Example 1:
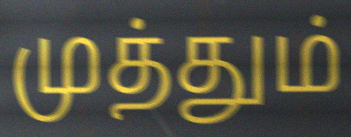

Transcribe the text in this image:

முத்தும்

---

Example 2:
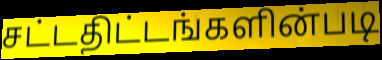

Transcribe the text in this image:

சட்டதிட்டங்களின்படி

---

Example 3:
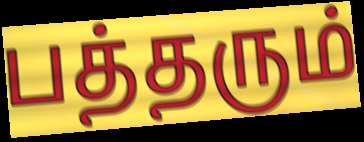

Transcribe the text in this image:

பத்தரும்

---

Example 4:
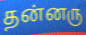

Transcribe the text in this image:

தன்னரு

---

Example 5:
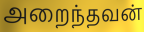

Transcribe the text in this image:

அறைந்தவன்